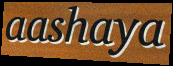
aashaya